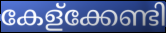
കേള്ക്കേണ്ടി